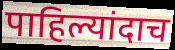
पाहिल्यांदाच